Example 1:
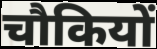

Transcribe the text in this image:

चौकियों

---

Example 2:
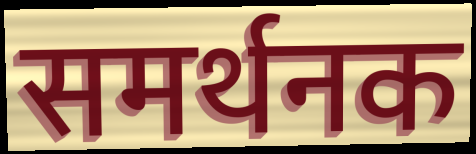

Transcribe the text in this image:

समर्थनक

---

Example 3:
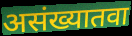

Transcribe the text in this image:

असंख्यातवा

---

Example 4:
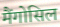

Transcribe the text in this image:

मैंगोसिल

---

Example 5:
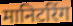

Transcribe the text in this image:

मानिटरिंग